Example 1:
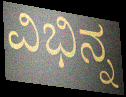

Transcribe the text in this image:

ವಿಭಿನ್ನ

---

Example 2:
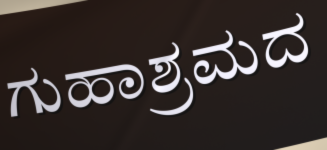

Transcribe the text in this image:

ಗುಹಾಶ್ರಮದ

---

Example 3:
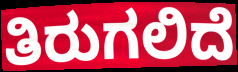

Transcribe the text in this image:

ತಿರುಗಲಿದೆ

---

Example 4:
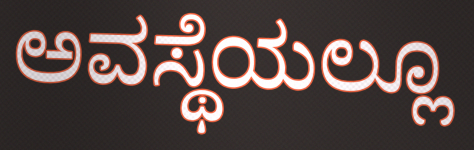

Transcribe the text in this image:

ಅವಸ್ಥೆಯಲ್ಲೂ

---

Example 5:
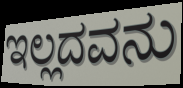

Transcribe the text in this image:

ಇಲ್ಲದವನು